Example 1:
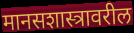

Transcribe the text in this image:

मानसशास्त्रावरील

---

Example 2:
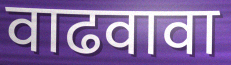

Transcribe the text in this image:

वाढवावा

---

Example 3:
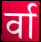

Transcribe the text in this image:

र्वा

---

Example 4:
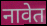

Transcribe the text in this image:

नावेत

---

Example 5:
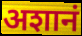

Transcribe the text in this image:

अशानं